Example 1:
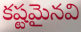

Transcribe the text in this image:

కష్టమైనవి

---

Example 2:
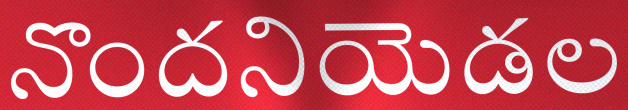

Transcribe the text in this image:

నొందనియెడల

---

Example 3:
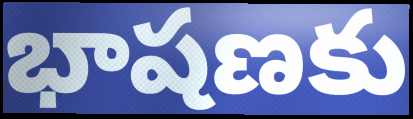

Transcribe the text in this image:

భాషణకు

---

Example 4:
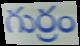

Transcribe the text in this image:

గుర్రం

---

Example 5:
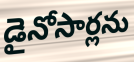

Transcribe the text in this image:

డైనోసార్లను